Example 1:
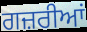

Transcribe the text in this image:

ਗਜ਼ਰੀਆਂ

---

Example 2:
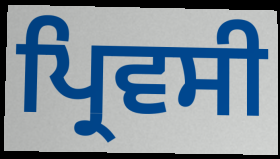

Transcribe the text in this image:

ਪ੍ਰਿਵਸੀ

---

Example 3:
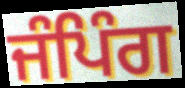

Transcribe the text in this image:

ਜੰਪਿੰਗ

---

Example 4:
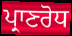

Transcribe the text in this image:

ਪ੍ਰਾਣਰੋਧ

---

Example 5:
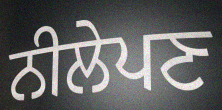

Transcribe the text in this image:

ਨੀਲੇਪਣ